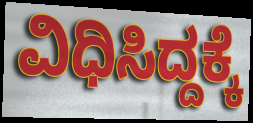
ವಿಧಿಸಿದ್ದಕ್ಕೆ